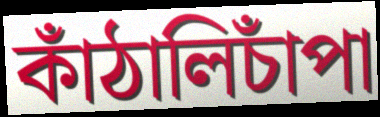
কাঁঠালিচাঁপা